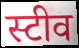
स्टीव